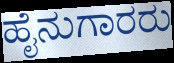
ಹೈನುಗಾರರು